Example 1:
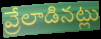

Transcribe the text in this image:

వ్రేలాడినట్లు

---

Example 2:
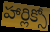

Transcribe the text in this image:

హార్లిక్సో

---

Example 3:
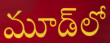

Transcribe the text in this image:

మూడ్‌లో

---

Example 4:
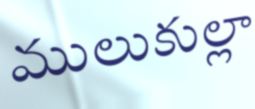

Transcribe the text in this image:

ములుకుల్లా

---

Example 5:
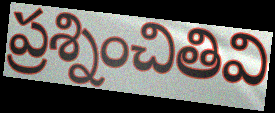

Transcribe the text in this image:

ప్రశ్నించితివి